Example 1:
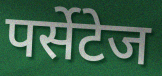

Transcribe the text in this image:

पर्सेटेज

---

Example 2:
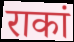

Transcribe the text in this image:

राकां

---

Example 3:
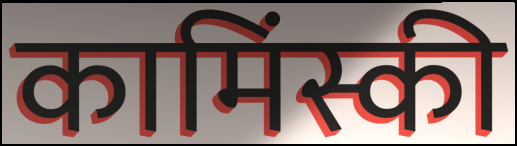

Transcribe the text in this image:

कामिंस्की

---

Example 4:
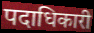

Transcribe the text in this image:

पदाधिकारी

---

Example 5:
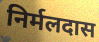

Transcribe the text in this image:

निर्मलदास